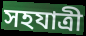
সহযাত্রী